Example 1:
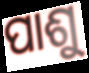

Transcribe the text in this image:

ପାଶୁ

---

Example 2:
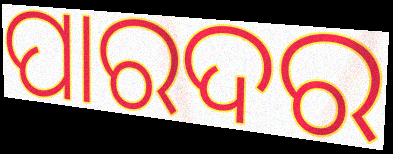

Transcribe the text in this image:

ପାରଦର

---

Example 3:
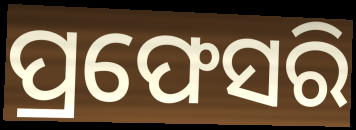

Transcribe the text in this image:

ପ୍ରଫେସରି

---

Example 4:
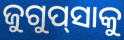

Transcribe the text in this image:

ଜୁଗୁପ୍‍ସାକୁ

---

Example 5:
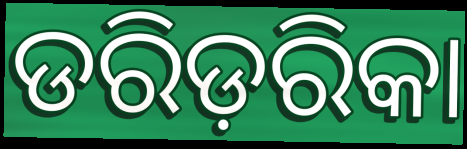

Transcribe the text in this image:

ଡରିଡ଼ରିକା